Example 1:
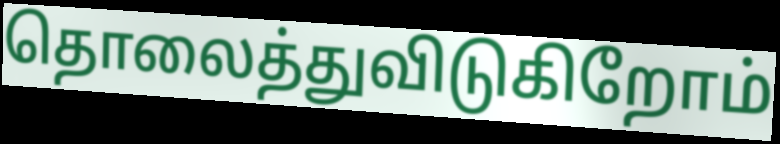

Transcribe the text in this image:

தொலைத்துவிடுகிறோம்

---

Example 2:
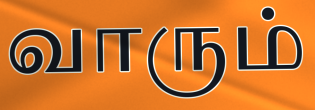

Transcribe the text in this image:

வாரும்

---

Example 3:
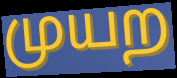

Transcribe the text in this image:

முயற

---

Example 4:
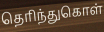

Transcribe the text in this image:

தெரிந்துகொள்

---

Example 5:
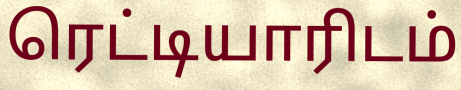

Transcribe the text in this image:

ரெட்டியாரிடம்